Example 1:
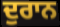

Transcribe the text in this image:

ਦੁਰਾਨ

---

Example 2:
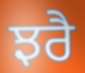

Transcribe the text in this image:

ਝਰੈ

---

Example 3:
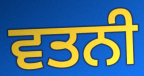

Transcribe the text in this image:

ਵਤਨੀ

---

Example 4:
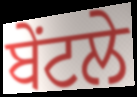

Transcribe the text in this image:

ਬੇਂਟਲੇ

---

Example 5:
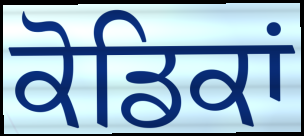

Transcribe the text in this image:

ਕੋਡਿਕਾਂ